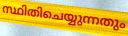
സ്ഥിതിചെയ്യുന്നതും